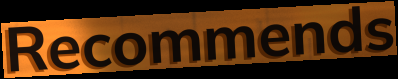
Recommends